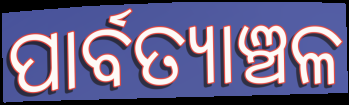
ପାର୍ବତ୍ୟାଞ୍ଚଳ